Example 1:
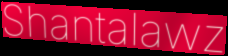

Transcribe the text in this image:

Shantalawz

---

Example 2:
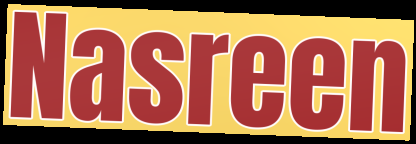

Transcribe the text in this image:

Nasreen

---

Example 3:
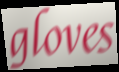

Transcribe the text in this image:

gloves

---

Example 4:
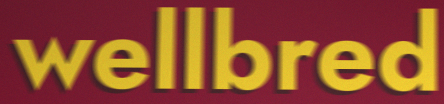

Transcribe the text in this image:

wellbred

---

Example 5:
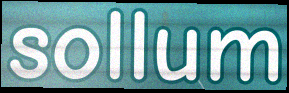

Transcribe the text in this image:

sollum